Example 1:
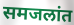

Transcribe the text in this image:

समजलांत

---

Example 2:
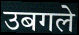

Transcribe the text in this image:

उबगले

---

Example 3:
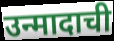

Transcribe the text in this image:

उन्मादाची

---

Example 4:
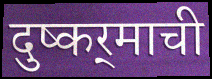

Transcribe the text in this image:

दुष्कर्माची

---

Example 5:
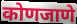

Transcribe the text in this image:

कोणजाणे